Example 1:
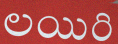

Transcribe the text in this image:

లయిరి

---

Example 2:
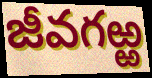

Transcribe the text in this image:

జీవగఱ్ఱ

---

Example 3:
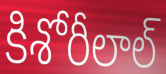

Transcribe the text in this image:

కిశోరీలాల్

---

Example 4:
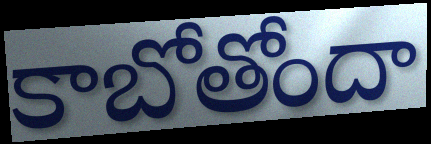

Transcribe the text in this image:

కాబోతోందా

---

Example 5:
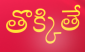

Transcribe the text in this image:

తొక్కితే